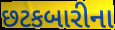
છટકબારીના